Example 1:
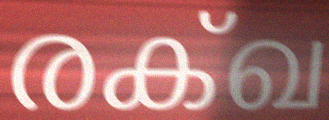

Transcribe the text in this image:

രക്ഖ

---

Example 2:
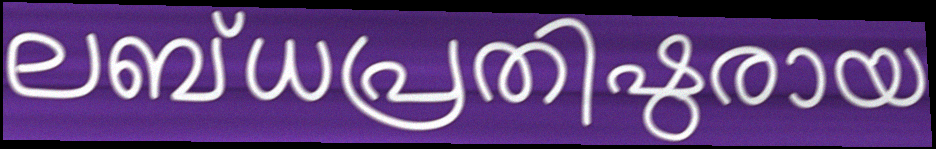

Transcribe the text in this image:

ലബ്ധപ്രതിഷ്ഠരായ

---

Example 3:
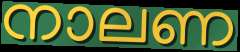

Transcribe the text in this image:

നാലണ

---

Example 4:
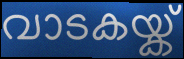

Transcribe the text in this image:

വാടകയ്ക്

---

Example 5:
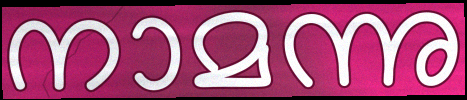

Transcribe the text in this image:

നാമന്നു